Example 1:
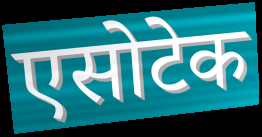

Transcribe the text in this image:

एसोटेक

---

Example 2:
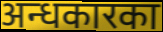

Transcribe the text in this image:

अन्धकारका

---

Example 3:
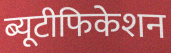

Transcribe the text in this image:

ब्यूटीफिकेशन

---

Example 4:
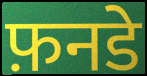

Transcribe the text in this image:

फ़नडे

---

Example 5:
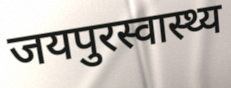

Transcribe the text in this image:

जयपुरस्वास्थ्य